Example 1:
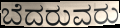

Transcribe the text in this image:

ಬೆದರುವರು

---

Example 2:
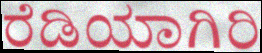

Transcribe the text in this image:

ರೆಡಿಯಾಗಿರಿ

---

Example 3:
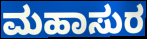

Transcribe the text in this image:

ಮಹಾಸುರ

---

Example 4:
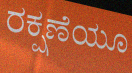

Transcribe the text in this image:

ರಕ್ಷಣೆಯೂ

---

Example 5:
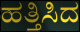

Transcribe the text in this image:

ಹತ್ತಿಸಿದ